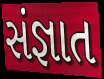
સંજ્ઞાત